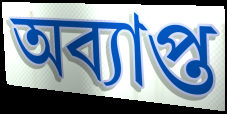
অব্যাপ্ত